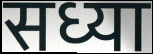
सध्या